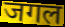
जगल